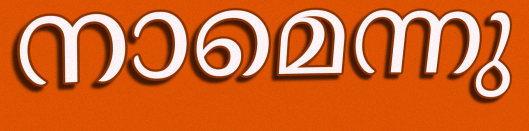
നാമെന്നു